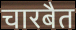
चारबैत